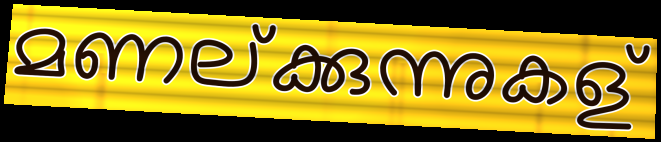
മണല്ക്കുന്നുകള്